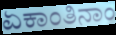
ಏಕಾಂತಿನಾಂ